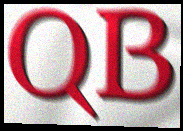
QB